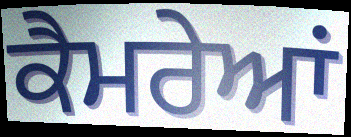
ਕੈਮਰੇਆਂ